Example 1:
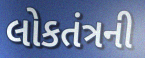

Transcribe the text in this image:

લોકતંત્રની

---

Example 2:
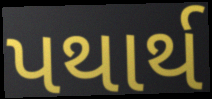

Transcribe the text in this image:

પથાર્થ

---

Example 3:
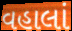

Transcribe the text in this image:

વહાલાં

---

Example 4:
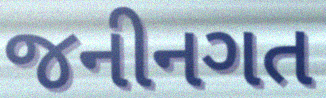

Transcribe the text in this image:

જનીનગત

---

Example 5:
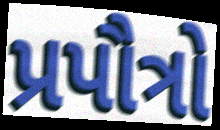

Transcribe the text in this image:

પ્રપૌત્રો